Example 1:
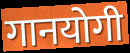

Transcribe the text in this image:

गानयोगी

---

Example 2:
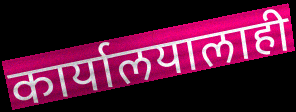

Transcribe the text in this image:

कार्यालयालाही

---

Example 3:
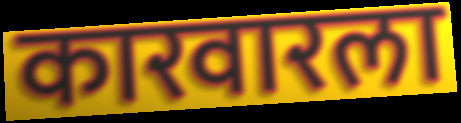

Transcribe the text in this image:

कारवारला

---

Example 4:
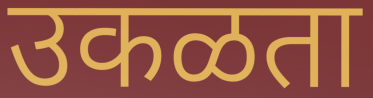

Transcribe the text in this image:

उकळता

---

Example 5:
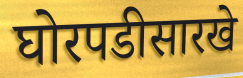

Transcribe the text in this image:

घोरपडीसारखे